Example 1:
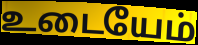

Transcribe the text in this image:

உடையேம்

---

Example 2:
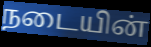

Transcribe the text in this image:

நடையின்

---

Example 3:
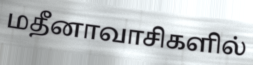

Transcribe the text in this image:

மதீனாவாசிகளில்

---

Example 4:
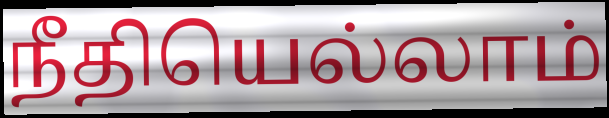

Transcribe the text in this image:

நீதியெல்லாம்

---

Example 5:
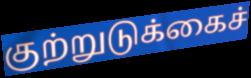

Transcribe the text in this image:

குற்றுடுக்கைச்